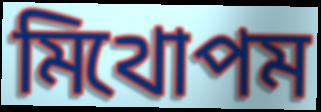
মিথোপম